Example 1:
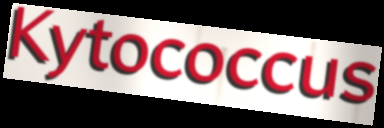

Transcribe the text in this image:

Kytococcus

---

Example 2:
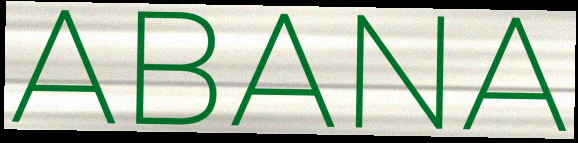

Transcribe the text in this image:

ABANA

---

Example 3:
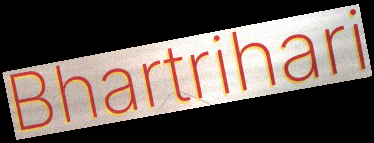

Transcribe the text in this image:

Bhartrihari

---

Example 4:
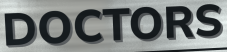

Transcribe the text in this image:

DOCTORS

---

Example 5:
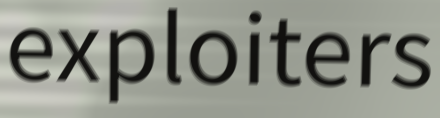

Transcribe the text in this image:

exploiters